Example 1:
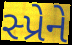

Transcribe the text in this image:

સ્પ્રેને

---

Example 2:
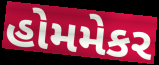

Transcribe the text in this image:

હોમમેકર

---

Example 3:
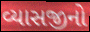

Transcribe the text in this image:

વ્યાસજીનો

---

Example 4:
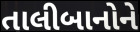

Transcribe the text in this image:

તાલીબાનોને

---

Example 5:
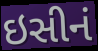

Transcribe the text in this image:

ઇસીનં